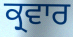
ਕ੍ਰਵਾਰ